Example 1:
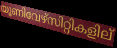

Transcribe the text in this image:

യൂണിവേഴ്സിറ്റികളില്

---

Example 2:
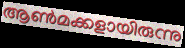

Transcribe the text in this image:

ആൺമക്കളായിരുന്നു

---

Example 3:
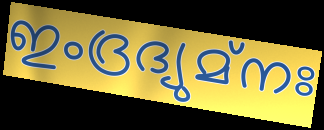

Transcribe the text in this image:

ഇംദ്രദ്യുമ്നഃ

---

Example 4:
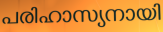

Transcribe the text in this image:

പരിഹാസ്യനായി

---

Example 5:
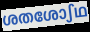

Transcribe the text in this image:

ശതശോഽഥ